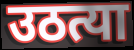
उठत्या